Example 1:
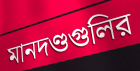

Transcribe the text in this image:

মানদণ্ডগুলির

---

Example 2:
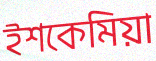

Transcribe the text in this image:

ইশকেমিয়া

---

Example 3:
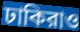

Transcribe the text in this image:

ঢাকিরাও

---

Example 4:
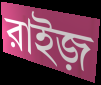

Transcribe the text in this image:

রাইজ়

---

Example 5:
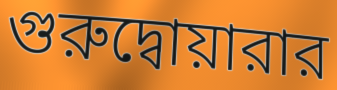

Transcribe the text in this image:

গুরুদ্বোয়ারার